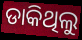
ଡାକିଥିଲୁ